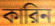
কারিন